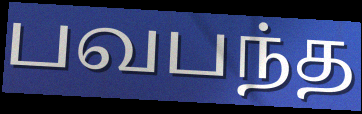
பவபந்த